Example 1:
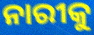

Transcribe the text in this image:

ନାରୀକୁ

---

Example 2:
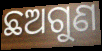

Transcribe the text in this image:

ଛଅଗୁଣ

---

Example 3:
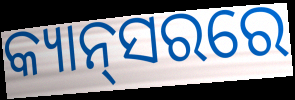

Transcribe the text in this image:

କ୍ୟାନ୍‌ସରରେ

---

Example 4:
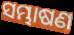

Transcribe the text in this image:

ସମ୍ଭାଷଣ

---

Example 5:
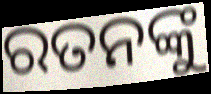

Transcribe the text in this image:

ରତନଙ୍କୁ